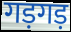
गड़गड़